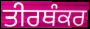
ਤੀਰਥੰਕਰ